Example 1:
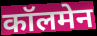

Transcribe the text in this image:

कॉलमेन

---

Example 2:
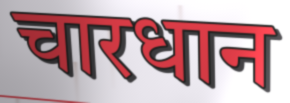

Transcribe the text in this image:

चारधान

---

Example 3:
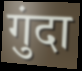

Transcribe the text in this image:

गुंदा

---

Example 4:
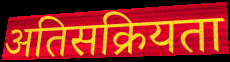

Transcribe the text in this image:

अतिसक्रियता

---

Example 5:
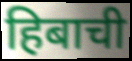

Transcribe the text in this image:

हिबाची